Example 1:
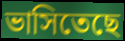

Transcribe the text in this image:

ভাসিতেছে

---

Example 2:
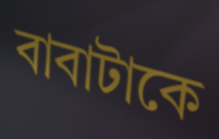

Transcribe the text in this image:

বাবাটাকে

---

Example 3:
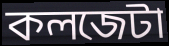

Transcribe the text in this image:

কলজেটা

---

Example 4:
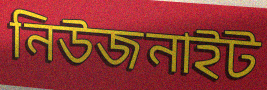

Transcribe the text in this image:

নিউজনাইট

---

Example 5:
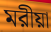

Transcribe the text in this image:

মরীয়া